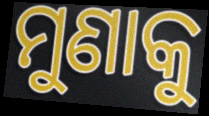
ମୁଣାକୁ